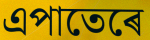
এপাতেৰে